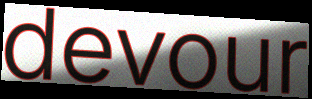
devour